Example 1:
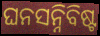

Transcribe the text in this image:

ଘନସନ୍ନିବିଷ୍ଟ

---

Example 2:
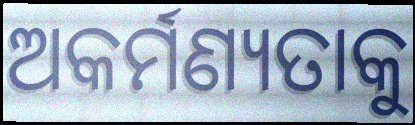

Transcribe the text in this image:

ଅକର୍ମଣ୍ୟତାକୁ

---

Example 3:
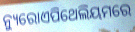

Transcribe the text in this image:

ନ୍ୟୁରୋଏପିଥେଲିୟମରେ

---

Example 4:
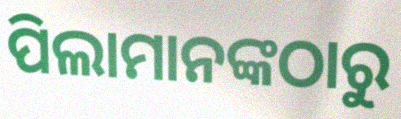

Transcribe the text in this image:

ପିଲାମାନଙ୍କଠାରୁ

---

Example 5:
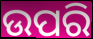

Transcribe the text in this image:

ଉପରି